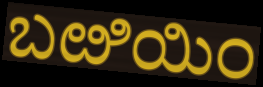
ಬೞಿಯಿಂ